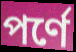
পর্ণে